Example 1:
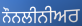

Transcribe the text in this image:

ਨੌਨਲੀਨੀਅਰ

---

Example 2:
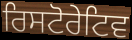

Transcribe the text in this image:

ਰਿਸਟੋਰੇਟਿਵ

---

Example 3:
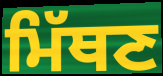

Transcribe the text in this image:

ਮਿੱਥਣ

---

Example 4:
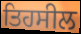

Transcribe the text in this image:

ਤਿਹਸੀਲ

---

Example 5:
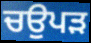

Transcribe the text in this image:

ਚਉਪੜ